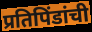
प्रतिपिंडांची